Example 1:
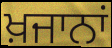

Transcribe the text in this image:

ਖ਼ਜਾਨਾਂ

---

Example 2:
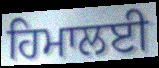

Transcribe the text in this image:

ਹਿਮਾਲਈ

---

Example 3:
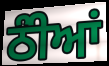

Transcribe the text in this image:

ਠੰੀਆਂ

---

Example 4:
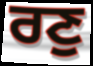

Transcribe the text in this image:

ਰਣੁ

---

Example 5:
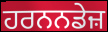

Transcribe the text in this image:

ਹਰਨਨਡੇਜ਼